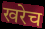
खरेच